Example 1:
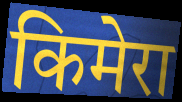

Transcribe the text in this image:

किमेरा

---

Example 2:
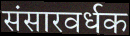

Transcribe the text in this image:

संसारवर्धक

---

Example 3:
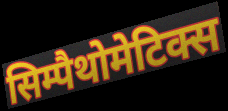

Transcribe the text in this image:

सिम्पैथोमेटिक्स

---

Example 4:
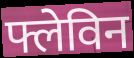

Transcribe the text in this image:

फ्लेविन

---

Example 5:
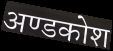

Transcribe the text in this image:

अण्डकोश